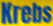
Krebs